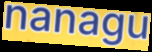
nanagu